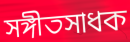
সঙ্গীতসাধক